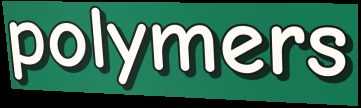
polymers